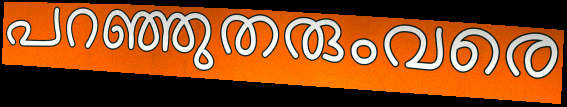
പറഞ്ഞുതരുംവരെ